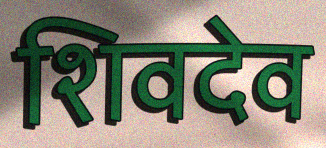
शिवदेव